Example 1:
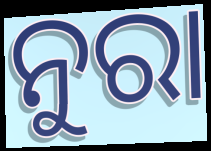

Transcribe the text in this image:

ନୁରା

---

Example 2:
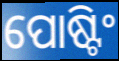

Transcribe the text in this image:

ପୋଷ୍ଟିଂ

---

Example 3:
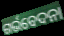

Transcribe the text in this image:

ଗର୍ଭବେଦନା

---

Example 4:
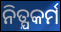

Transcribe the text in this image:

ନିତ୍ଯକର୍ମ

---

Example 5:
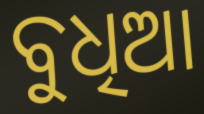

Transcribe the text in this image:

ବୁଧିଆ